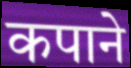
कपाने